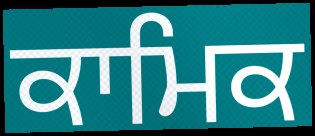
ਕਾਮਿਕ